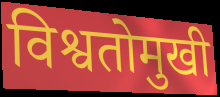
विश्वतोमुखी